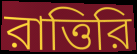
রাত্তিরি